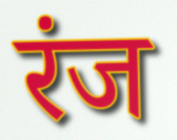
रंज